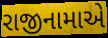
રાજીનામાએ